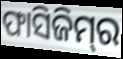
ଫାସିଜିମ୍‌ର